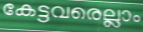
കേട്ടവരെല്ലാം